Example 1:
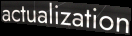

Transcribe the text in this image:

actualization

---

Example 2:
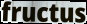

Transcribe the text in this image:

fructus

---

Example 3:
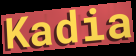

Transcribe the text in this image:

Kadia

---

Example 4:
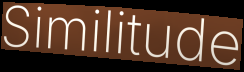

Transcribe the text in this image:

Similitude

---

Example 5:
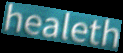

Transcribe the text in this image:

healeth